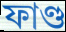
ফাণ্ড